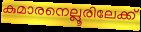
കുമാരനെല്ലൂരിലേക്ക്